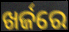
ଖର୍ଜରେ